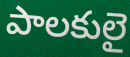
పాలకులై